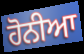
ਹੋਨੀਆ